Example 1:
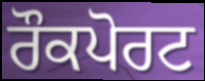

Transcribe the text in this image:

ਰੌਕਪੋਰਟ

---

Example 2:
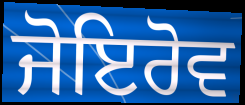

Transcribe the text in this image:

ਜੋਇਰੋਵ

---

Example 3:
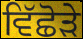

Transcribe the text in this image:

ਵਿੱਛੋੜੇ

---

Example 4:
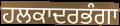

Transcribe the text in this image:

ਹਲਕਾਦਰਭੰਗਾ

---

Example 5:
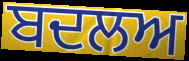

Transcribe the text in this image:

ਬਦਲਅ